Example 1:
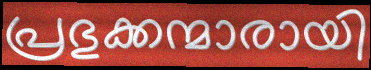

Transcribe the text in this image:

പ്രഭുക്കന്മാരായി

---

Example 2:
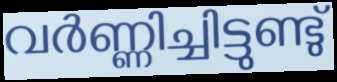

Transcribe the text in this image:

വർണ്ണിച്ചിട്ടുണ്ടു്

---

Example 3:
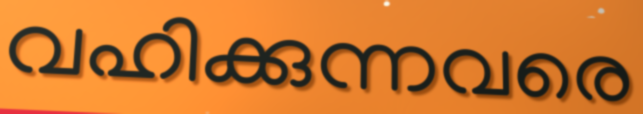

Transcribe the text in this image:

വഹിക്കുന്നവരെ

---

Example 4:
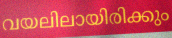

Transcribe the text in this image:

വയലിലായിരിക്കും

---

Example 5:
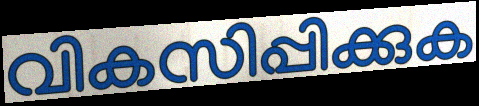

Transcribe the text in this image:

വികസിപ്പിക്കുക